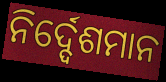
ନିର୍ଦ୍ଦେଶମାନ